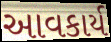
આવકાર્ય